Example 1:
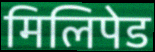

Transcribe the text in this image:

मिलिपेड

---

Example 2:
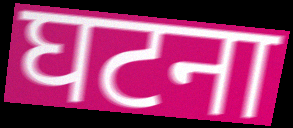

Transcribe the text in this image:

घटना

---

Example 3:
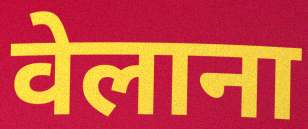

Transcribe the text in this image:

वेलाना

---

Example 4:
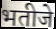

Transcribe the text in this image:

भतीजे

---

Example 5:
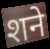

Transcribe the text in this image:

शने